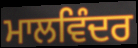
ਮਾਲਵਿੰਦਰ